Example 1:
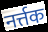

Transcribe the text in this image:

नर्त्तक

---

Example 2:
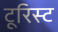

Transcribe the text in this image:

टूरिस्ट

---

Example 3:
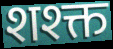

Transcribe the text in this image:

शश्क्त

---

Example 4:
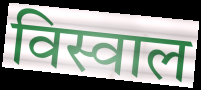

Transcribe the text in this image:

विस्वाल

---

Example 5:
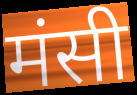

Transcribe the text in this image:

मंसी